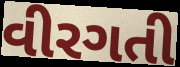
વીરગતી